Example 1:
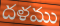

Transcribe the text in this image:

దళము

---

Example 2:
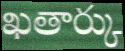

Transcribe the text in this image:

ఖతార్కు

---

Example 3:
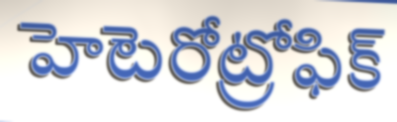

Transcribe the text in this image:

హెటెరోట్రోఫిక్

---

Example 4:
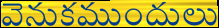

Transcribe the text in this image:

వెనుకముందులు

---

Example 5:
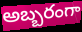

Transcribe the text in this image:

అబ్బరంగా